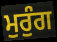
ਮੁਰੁੰਗ